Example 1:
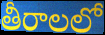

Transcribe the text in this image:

తీరాలలో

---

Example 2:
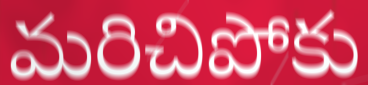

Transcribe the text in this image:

మరిచిపోకు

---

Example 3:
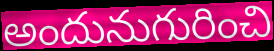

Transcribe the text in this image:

అందునుగురించి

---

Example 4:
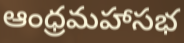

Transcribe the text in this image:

ఆంధ్రమహాసభ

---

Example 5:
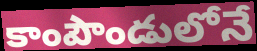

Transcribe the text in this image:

కాంపౌండులోనే